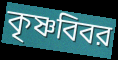
কৃষ্ণবিবর